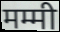
मम्मी